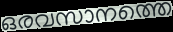
ഒരവസാനത്തെ